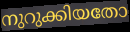
നുറുക്കിയതോ